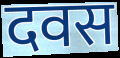
दवस